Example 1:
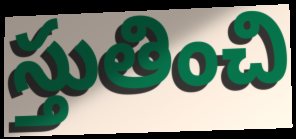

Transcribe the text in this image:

స్తుతించి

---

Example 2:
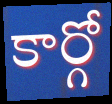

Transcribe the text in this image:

కార్గో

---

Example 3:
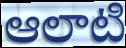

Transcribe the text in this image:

ఆలాటి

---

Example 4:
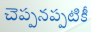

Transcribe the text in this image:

చెప్పనప్పటికీ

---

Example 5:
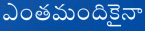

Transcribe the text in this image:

ఎంతమందికైనా